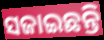
ସଜାଇଛନ୍ତି